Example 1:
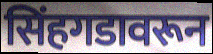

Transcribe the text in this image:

सिंहगडावरून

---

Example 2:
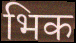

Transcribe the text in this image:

भिक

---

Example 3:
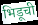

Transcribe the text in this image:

भिडूची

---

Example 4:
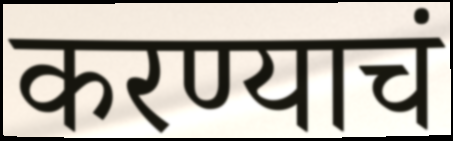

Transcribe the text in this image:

करण्याचं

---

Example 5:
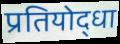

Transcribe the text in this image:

प्रतियोद्धा